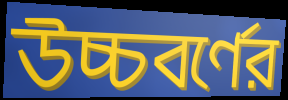
উচ্চবর্ণের